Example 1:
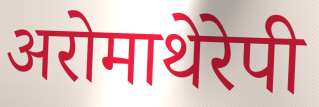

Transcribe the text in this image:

अरोमाथेरेपी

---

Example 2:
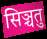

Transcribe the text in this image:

सिञ्चतु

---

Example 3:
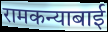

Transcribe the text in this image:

रामकन्याबाई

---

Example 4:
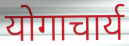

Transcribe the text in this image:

योगाचार्य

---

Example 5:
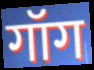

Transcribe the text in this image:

गॉग